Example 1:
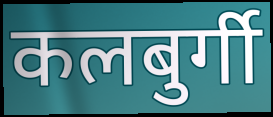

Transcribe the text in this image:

कलबुर्गी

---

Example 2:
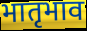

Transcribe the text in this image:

भातृभाव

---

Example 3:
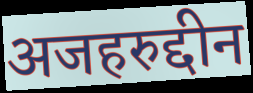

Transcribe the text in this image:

अजहरुद्दीन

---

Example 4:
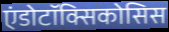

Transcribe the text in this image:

एंडोटॉक्सिकोसिस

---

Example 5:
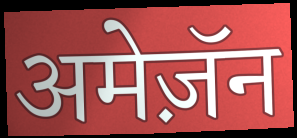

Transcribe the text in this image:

अमेज़ॅन